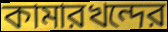
কামারখন্দের